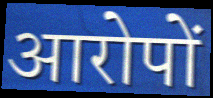
आरोपों